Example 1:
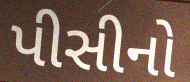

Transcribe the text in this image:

પીસીનો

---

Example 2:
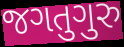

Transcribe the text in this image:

જગતુગુરુ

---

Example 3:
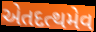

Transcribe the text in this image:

એતદત્થમેવ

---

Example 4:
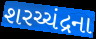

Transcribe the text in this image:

શરચ્ચંદ્રના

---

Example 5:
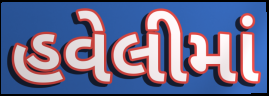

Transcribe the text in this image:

હવેલીમાં